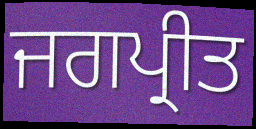
ਜਗਪ੍ਰੀਤ